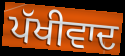
ਪੱਖੀਵਾਦ